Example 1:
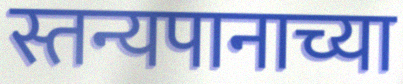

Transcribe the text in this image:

स्तन्यपानाच्या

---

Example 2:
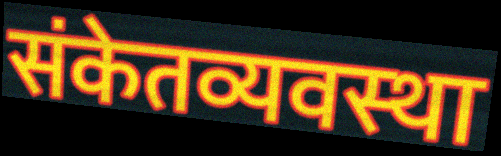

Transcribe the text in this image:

संकेतव्यवस्था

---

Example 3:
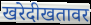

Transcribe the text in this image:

खरेदीखतावर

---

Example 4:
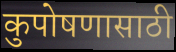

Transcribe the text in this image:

कुपोषणासाठी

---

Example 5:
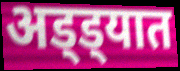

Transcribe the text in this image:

अड्ड्यात